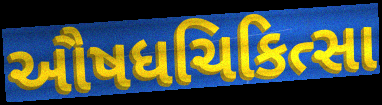
ઔષધચિકિત્સા